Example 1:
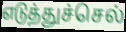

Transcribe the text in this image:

எடுத்துச்செல்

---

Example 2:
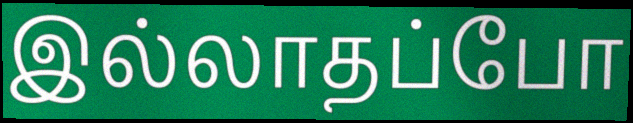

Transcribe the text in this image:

இல்லாதப்போ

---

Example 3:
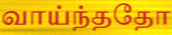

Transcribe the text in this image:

வாய்ந்ததோ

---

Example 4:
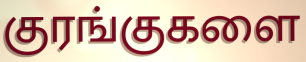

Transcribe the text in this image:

குரங்குகளை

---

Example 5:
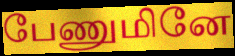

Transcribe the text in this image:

பேணுமினே